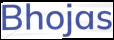
Bhojas